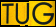
TUG